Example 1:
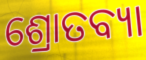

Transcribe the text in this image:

ଶ୍ରୋତବ୍ୟା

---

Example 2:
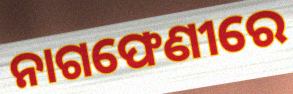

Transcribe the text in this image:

ନାଗଫେଣୀରେ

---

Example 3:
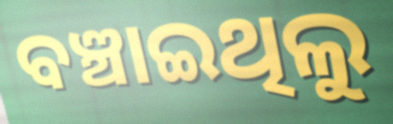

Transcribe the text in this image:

ବଞ୍ଚାଇଥିଲୁ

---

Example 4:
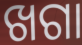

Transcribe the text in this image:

ଖଗା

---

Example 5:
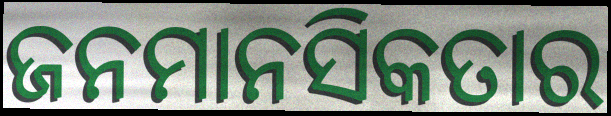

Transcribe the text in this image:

ଜନମାନସିକତାର